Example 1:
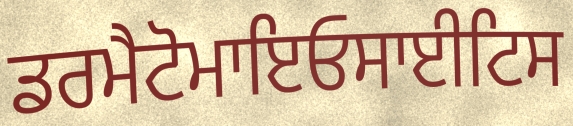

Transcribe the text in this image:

ਡਰਮੈਟੋਮਾਇਓਸਾਈਟਿਸ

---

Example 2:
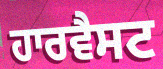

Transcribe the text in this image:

ਹਾਰਵੈਸਟ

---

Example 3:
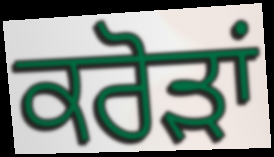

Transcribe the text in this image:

ਕਰੋੜਾਂ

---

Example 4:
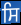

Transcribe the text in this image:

ਸਿ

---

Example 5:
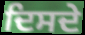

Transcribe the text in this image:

ਦਿਸਦੇ